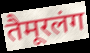
तैमूरलंग